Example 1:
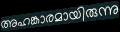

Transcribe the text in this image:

അഹങ്കാരമായിരുന്നു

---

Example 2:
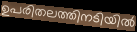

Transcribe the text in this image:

ഉപരിതലത്തിനടിയിൽ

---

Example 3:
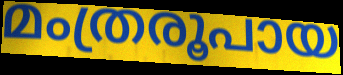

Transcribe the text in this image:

മംത്രരൂപായ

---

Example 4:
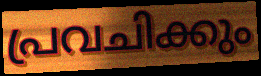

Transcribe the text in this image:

പ്രവചിക്കും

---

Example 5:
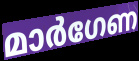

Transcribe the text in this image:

മാർഗേണ